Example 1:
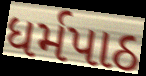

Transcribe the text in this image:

ધર્મપાઠ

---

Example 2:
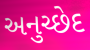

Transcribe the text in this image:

અનુચ્છેદ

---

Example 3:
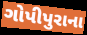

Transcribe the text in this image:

ગોપીપુરાના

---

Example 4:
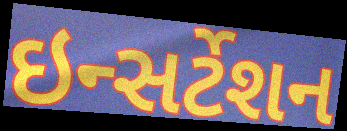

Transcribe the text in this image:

ઇન્સર્ટેશન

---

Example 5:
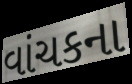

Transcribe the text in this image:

વાંચકના